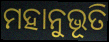
ମହାନୁଭୂତି